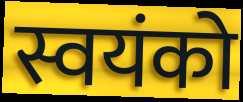
स्वयंको